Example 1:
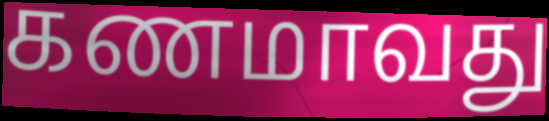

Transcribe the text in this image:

கணமாவது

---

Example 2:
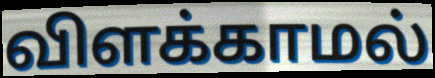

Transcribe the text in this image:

விளக்காமல்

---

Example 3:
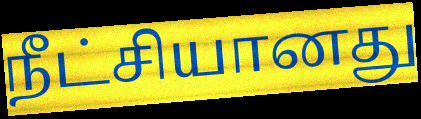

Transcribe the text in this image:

நீட்சியானது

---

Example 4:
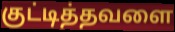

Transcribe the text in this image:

குட்டித்தவளை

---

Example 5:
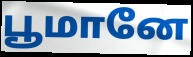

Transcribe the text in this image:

பூமானே